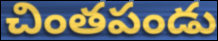
చింతపండు